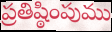
ప్రతిష్ఠింపుము